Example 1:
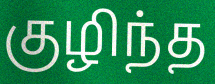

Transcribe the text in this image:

குழிந்த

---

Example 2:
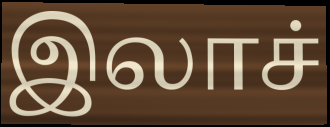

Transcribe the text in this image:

இலாச்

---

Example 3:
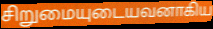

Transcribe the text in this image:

சிறுமையுடையவனாகிய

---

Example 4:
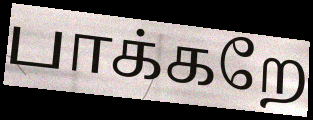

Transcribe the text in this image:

பாக்கறே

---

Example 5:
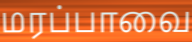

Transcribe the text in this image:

மரப்பாவை